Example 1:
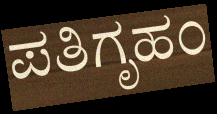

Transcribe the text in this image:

ಪತಿಗೃಹಂ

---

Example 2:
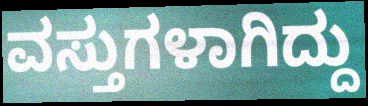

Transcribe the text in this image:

ವಸ್ತುಗಳಾಗಿದ್ದು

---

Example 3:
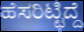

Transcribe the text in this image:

ಹೆಸರಿಟ್ಟಿದ್ದೆ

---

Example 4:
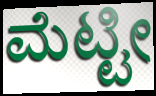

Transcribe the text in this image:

ಮೆಟ್ಟೀ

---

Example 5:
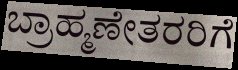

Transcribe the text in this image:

ಬ್ರಾಹ್ಮಣೇತರರಿಗೆ